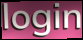
login